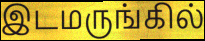
இடமருங்கில்